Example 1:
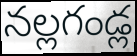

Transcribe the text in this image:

నల్లగండ్ల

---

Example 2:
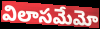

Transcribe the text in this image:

విలాసమేమో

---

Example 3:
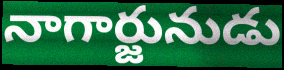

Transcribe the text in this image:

నాగార్జునుడు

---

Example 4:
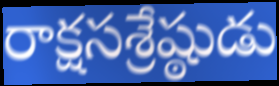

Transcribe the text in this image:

రాక్షసశ్రేష్ఠుడు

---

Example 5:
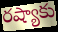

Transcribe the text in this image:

రష్యాకు